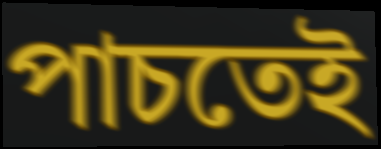
পাচতেই